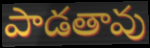
పాడతావు